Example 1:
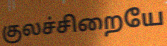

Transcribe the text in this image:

குலச்சிறையே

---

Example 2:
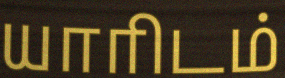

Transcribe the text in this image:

யாரிடம்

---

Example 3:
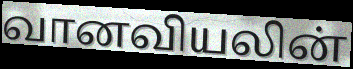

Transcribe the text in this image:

வானவியலின்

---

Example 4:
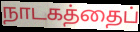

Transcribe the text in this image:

நாடகத்தைப்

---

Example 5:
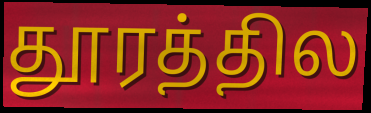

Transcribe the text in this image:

தூரத்தில